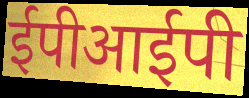
ईपीआईपी